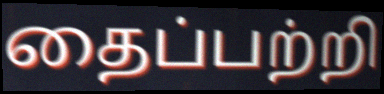
தைப்பற்றி